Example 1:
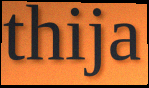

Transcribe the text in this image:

thija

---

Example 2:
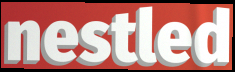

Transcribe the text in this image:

nestled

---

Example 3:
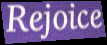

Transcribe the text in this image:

Rejoice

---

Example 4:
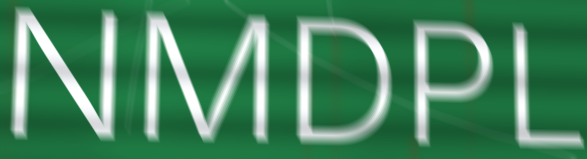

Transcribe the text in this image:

NMDPL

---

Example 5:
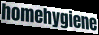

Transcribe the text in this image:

homehygiene